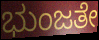
ಭುಂಜತೇ